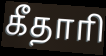
கீதாரி